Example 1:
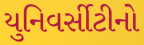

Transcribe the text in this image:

યુનિવર્સીટીનો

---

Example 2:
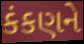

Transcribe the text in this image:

કંકણને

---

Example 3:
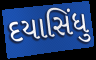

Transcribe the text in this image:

દયાસિંધુ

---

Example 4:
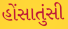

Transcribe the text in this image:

હોંસાતુંસી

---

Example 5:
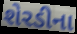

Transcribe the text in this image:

શેરડીના